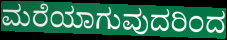
ಮರೆಯಾಗುವುದರಿಂದ